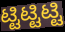
ಟ್ಟಿಟ್ಟಿಟ್ಟಿ